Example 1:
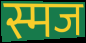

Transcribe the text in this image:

स्मज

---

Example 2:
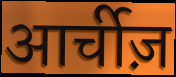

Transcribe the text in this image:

आर्चीज़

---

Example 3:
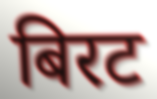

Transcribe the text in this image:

बिरट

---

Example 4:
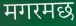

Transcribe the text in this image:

मगरमछ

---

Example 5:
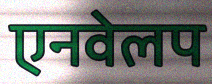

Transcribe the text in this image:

एनवेलप